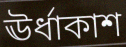
ঊর্ধাকাশ